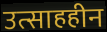
उत्साहहीन